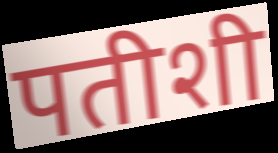
पतीशी